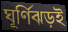
ঘূর্ণিঝড়ই